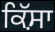
ਕ਼ਿੱਸਾ